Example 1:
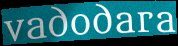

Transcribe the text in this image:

vadodara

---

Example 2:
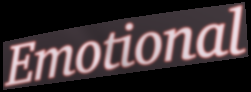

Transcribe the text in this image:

Emotional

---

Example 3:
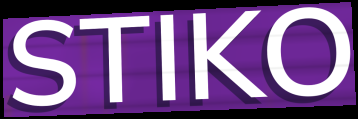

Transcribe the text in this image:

STIKO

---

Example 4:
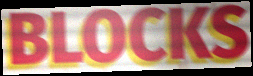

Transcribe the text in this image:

BLOCKS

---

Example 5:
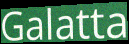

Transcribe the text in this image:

Galatta